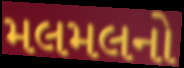
મલમલનો